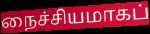
நைச்சியமாகப்